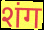
शंग